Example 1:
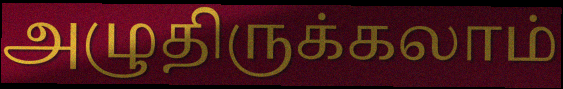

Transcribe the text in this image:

அழுதிருக்கலாம்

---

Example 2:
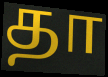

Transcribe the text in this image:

தா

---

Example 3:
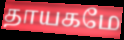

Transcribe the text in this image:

தாயகமே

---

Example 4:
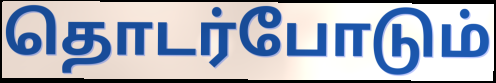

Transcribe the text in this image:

தொடர்போடும்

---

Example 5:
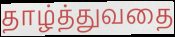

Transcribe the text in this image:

தாழ்த்துவதை